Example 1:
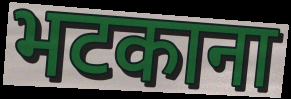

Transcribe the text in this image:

भटकाना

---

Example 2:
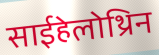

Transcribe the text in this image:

साईहेलोथ्रिन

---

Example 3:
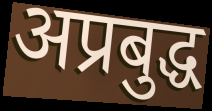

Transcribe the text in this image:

अप्रबुद्ध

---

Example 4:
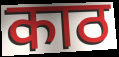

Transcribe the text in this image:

काठ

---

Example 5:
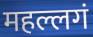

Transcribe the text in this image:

महल्लगं